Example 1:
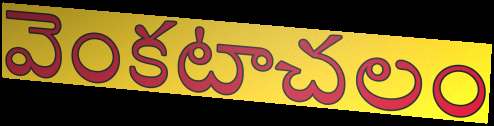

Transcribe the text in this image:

వెంకటాచలం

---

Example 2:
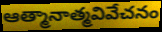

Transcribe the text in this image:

ఆత్మానాత్మవివేచనం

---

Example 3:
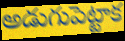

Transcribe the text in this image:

అడుగుపెట్టాక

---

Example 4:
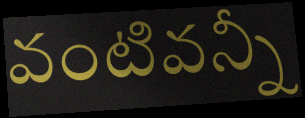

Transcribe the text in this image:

వంటివన్నీ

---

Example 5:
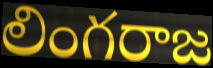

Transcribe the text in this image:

లింగరాజ